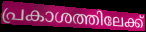
പ്രകാശത്തിലേക്ക്